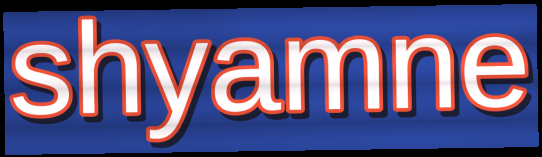
shyamne